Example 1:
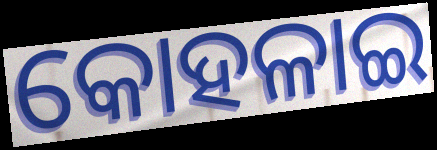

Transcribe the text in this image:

କୋହଳାଇ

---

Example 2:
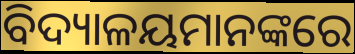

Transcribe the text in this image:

ବିଦ୍ୟାଳୟମାନଙ୍କରେ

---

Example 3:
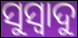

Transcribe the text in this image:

ସୁସ୍ୱାଦୁ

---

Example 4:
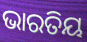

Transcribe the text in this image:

ଭାରତିୟ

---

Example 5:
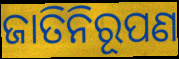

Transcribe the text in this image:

ଜାତିନିରୂପଣ